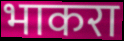
भाकरा